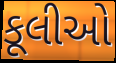
કૂલીઓ